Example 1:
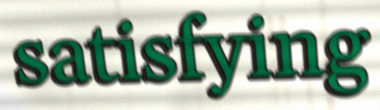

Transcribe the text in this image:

satisfying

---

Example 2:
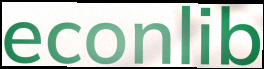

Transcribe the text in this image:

econlib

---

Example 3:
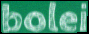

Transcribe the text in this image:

bolei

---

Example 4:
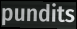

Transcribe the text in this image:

pundits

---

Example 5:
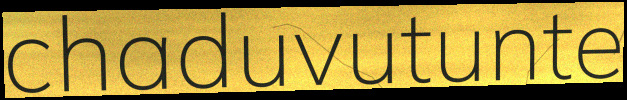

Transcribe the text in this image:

chaduvutunte